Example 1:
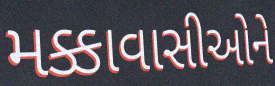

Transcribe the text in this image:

મક્કાવાસીઓને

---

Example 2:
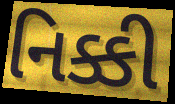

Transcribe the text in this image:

નિક્કી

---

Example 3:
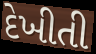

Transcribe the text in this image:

દેખીતી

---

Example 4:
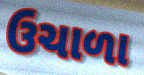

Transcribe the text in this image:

ઉચાળા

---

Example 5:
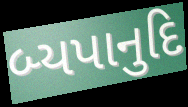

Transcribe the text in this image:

બ્યપાનુદિ